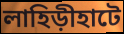
লাহিড়ীহাটে